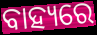
ବାହ୍ୟରେ